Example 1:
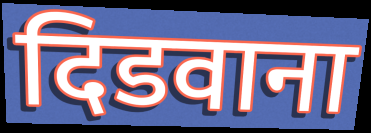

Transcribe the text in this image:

दिडवाना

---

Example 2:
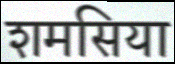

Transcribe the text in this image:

शमसिया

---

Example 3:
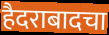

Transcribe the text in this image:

हैदराबादचा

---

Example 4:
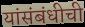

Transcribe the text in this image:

यांसंबंधीची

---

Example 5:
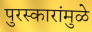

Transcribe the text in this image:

पुरस्कारांमुळे